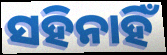
ସହିନାହିଁ